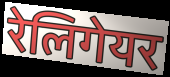
रेलिगेयर